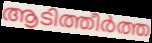
ആടിത്തീർത്ത